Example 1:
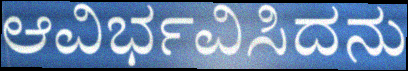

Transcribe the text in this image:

ಆವಿರ್ಭವಿಸಿದನು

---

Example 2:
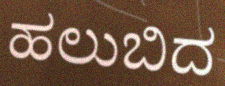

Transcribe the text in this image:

ಹಲುಬಿದ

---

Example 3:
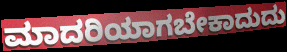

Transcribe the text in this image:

ಮಾದರಿಯಾಗಬೇಕಾದುದು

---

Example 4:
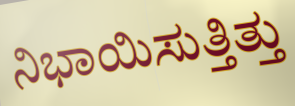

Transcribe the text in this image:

ನಿಭಾಯಿಸುತ್ತಿತ್ತು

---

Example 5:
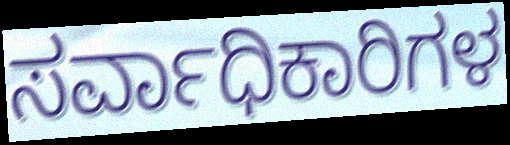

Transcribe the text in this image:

ಸರ್ವಾಧಿಕಾರಿಗಳ